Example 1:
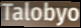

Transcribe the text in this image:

Talobyo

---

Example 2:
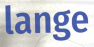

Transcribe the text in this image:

lange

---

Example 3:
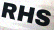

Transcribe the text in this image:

RHS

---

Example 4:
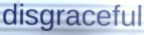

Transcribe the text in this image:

disgraceful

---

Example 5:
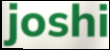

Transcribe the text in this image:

joshi